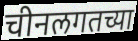
चीनलगतच्या